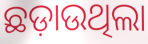
ଛଡ଼ାଉଥିଲା